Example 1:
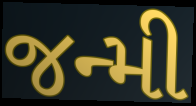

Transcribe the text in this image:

જન્મી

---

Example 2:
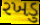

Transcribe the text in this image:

રખડુ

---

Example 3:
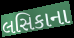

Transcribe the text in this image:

લસિકાના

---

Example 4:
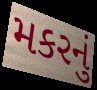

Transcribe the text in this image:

મકરનું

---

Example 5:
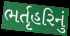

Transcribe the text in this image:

ભર્તૃહરિનું